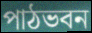
পাঠভবন